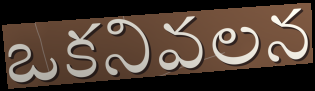
ఒకనివలన